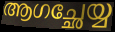
ആഗച്ഛേയ്യ